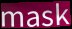
mask